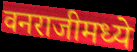
वनराजीमध्ये